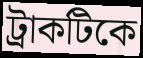
ট্রাকটিকে